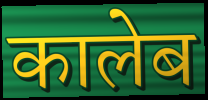
कालेब